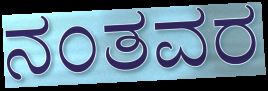
ನಂತವರ